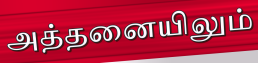
அத்தனையிலும்